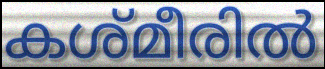
കശ്മീരിൽ